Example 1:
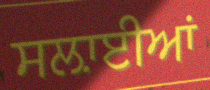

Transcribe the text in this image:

ਸਲ਼ਾਈਆਂ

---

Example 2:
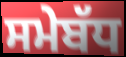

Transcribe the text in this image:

ਸਮੇਬੱਧ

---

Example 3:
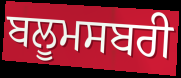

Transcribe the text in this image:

ਬਲੂਮਸਬਰੀ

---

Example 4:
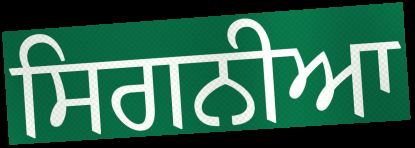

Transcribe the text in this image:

ਸਿਗਨੀਆ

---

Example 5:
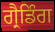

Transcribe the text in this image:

ਗ੍ਰੈਡਿੰਗ